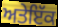
ਅਤੇਇੱਕ